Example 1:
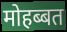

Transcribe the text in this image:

मोहब्बत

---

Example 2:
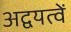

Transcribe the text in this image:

अद्वयत्वें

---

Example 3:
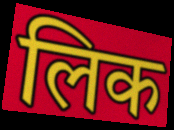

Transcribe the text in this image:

लिक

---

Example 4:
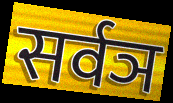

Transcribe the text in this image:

सर्वञ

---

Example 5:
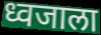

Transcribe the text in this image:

ध्वजाला